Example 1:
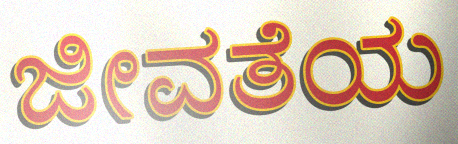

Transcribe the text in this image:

ಜೀವತೆಯ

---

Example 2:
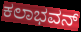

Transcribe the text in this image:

ಕಲಾಭವನ್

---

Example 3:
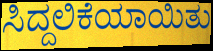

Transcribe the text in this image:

ಸಿದ್ದಲಿಕೆಯಾಯಿತು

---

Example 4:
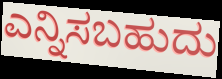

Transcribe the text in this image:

ಎನ್ನಿಸಬಹುದು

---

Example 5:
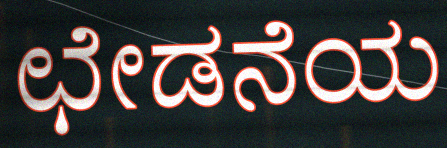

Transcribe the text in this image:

ಛೇಡನೆಯ